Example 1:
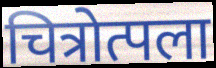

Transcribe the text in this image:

चित्रोत्पला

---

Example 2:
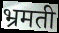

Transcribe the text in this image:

भ्रमती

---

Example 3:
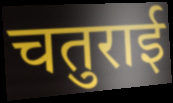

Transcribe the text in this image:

चतुराई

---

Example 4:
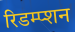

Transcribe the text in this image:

रिडम्प्शन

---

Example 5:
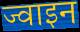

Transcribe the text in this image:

ज्वाइन